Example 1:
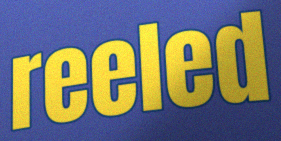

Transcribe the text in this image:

reeled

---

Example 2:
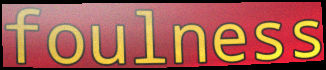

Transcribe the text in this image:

foulness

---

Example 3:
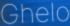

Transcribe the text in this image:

Ghelo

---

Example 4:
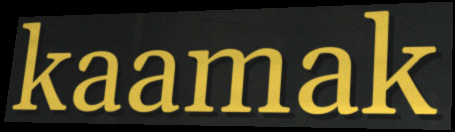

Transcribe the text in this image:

kaamak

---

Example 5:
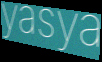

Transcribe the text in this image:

yasya